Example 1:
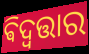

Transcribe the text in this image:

ଵିଦ୍ବତ୍ତାର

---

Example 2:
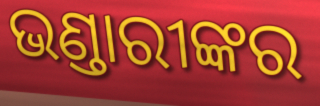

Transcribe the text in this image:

ଭଣ୍ଡାରୀଙ୍କର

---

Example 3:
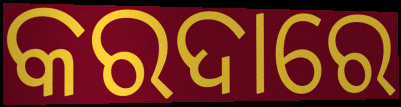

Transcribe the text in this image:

କରଦାରେ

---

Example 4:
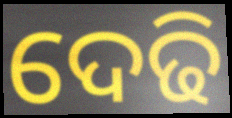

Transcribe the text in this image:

ଦେଢି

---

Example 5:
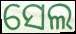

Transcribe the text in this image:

ସେଲ